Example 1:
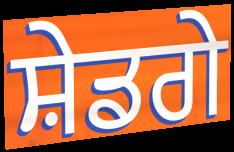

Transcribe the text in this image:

ਸ਼ੇਡਗੇ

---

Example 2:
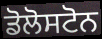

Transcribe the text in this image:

ਡੋਲੋਸਟੋਨ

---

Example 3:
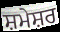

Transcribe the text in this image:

ਸ਼ਮੇਸ਼ਰ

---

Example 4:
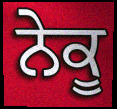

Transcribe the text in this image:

ਨੇਕੂ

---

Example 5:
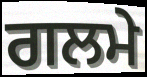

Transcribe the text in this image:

ਗਲਮੇ